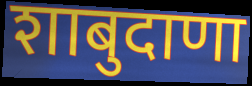
शाबुदाणा